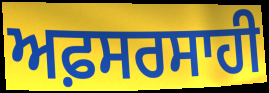
ਅਫ਼ਸਰਸਾਹੀ